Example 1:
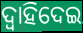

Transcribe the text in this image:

ଦ୍ବାହିଦେଇ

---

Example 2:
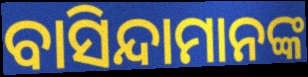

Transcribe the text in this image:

ବାସିନ୍ଦାମାନଙ୍କ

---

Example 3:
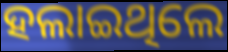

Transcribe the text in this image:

ହଲାଇଥିଲେ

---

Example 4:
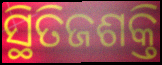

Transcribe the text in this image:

ସ୍ଥିତିଜଶକ୍ତି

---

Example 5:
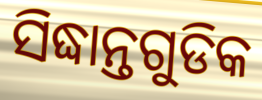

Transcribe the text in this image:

ସିଦ୍ଧାନ୍ତଗୁଡିକ